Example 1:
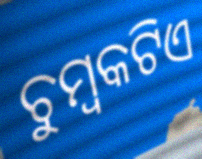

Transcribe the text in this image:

ଚୁମ୍ବକଟିଏ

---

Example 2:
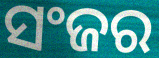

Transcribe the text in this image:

ସଂଜର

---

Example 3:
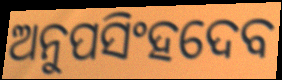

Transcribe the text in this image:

ଅନୁପସିଂହଦେବ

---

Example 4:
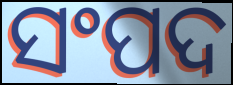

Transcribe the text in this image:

ସଂପଦ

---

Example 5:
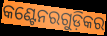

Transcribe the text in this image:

କଣ୍ଟେନରଗୁଡ଼ିକର